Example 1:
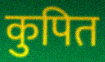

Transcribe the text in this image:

कुपित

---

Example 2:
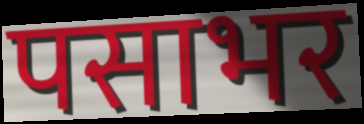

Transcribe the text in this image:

पसाभर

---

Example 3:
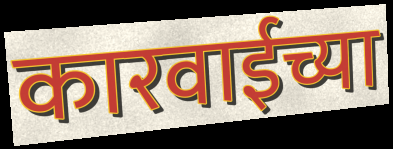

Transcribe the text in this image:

कारवाईच्या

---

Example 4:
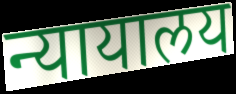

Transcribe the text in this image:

न्यायालय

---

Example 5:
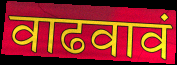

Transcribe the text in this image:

वाढवावं